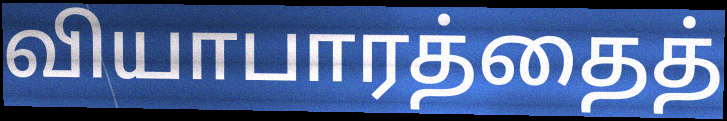
வியாபாரத்தைத்